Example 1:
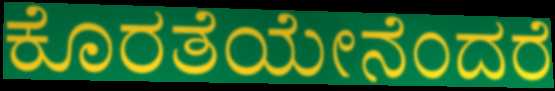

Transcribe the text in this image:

ಕೊರತೆಯೇನೆಂದರೆ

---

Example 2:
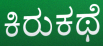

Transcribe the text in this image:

ಕಿರುಕಥೆ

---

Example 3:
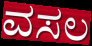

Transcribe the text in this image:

ವಸಲ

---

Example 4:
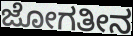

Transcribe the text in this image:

ಜೋಗತೀನ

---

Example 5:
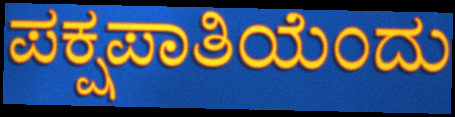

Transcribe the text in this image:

ಪಕ್ಷಪಾತಿಯೆಂದು